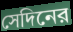
সেদিনের